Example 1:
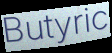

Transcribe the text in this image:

Butyric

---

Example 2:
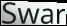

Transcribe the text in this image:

Swar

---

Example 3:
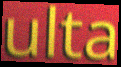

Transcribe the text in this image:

ulta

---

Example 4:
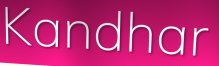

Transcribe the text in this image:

Kandhar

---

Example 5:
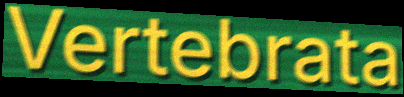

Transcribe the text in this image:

Vertebrata